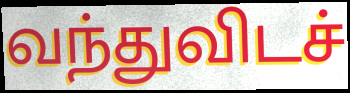
வந்துவிடச்